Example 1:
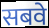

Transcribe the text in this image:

सबवे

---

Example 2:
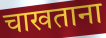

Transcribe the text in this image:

चाखताना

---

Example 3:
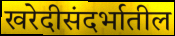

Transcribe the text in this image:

खरेदीसंदर्भातील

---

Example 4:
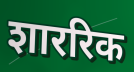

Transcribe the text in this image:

शाररिक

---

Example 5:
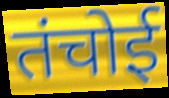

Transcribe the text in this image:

तंचोई